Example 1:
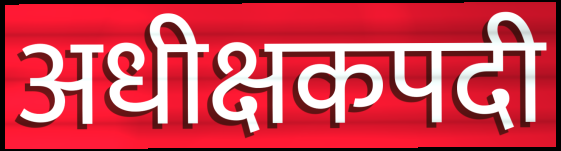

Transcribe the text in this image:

अधीक्षकपदी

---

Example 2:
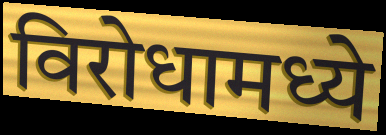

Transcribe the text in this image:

विरोधामध्ये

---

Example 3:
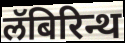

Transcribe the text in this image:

लॅबिरिन्थ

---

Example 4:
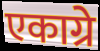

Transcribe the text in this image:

एकाग्रे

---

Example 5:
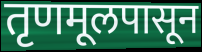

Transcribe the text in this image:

तृणमूलपासून